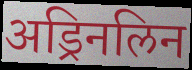
अड्रिनलिन